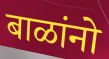
बाळांनो